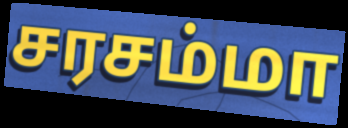
சரசம்மா